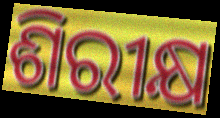
ଶିରୀକ୍ଷ